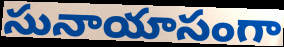
సునాయాసంగా